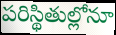
పరిస్థితుల్లోనూ